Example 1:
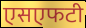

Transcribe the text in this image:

एसएफटी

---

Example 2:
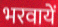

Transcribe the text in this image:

भरवायें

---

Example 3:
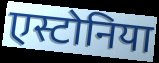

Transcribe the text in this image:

एस्टोनिया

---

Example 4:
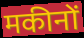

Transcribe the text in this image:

मकीनों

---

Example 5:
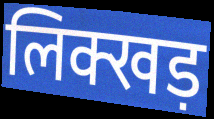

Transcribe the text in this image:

लिक्खड़